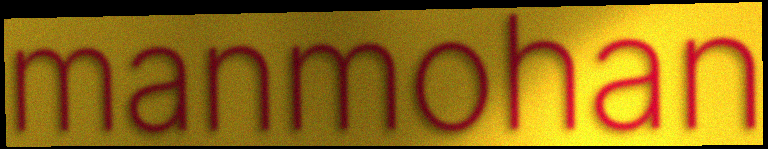
manmohan